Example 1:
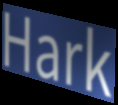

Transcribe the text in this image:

Hark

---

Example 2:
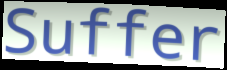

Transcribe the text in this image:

Suffer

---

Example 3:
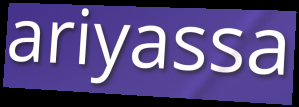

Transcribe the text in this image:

ariyassa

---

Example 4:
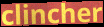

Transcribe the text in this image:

clincher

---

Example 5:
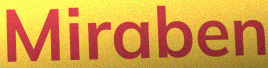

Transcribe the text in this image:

Miraben